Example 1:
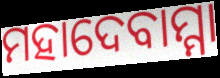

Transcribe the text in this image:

ମହାଦେବାମ୍ମା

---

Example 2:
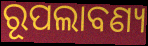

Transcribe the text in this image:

ରୂପଲାବଣ୍ୟ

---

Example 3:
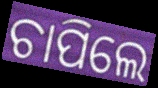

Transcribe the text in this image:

ଚାପିଲେ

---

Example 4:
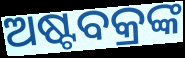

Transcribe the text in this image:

ଅଷ୍ଟବକ୍ରଙ୍କ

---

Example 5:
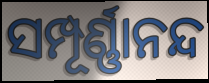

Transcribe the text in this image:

ସମ୍ପୂର୍ଣ୍ଣାନନ୍ଦ